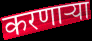
करणाऱ्या